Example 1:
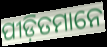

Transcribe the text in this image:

ପୀଡ଼ିତମାନେ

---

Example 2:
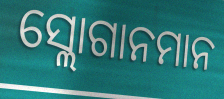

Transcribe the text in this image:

ସ୍ଲୋଗାନମାନ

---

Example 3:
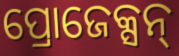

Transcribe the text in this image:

ପ୍ରୋଜେକ୍ସନ୍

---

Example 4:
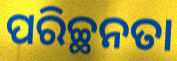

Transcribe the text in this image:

ପରିଚ୍ଛନତା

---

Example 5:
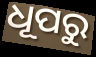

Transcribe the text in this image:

ଧୂପରୁ